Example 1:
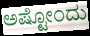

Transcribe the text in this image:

ಅಷ್ಟೋಂದು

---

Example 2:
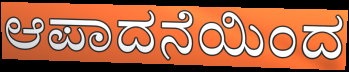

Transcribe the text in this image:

ಆಪಾದನೆಯಿಂದ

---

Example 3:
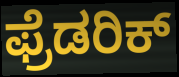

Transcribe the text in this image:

ಫ್ರೆಡರಿಕ್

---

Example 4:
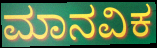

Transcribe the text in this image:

ಮಾನವಿಕ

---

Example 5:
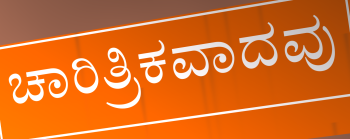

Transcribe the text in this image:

ಚಾರಿತ್ರಿಕವಾದವು